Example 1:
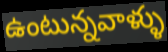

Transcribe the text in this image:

ఉంటున్నవాళ్ళు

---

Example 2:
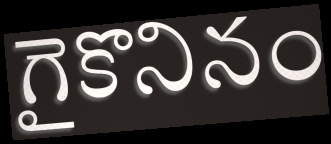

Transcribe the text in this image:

గైకొనినం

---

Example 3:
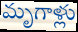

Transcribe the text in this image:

మృగాళ్లు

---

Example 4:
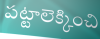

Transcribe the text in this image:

పట్టాలెక్కించి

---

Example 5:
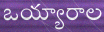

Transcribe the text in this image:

ఒయ్యారాల